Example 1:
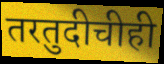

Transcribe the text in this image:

तरतुदीचीही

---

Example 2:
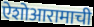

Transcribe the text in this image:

ऐशोआरामाची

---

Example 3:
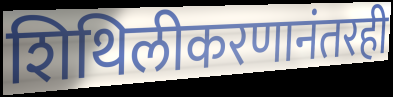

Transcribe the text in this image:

शिथिलीकरणानंतरही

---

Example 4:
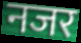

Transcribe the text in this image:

नजर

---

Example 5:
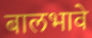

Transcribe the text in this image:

बालभावे